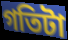
গতিটা